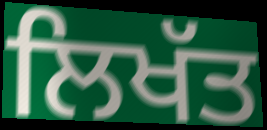
ਲਿਖੱਤ